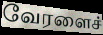
வேரளைச்